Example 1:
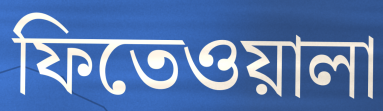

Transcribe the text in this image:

ফিতেওয়ালা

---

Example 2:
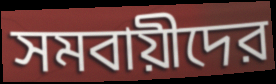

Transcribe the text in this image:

সমবায়ীদের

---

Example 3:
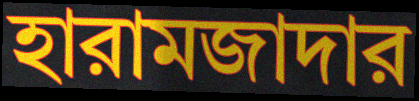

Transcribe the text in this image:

হারামজাদার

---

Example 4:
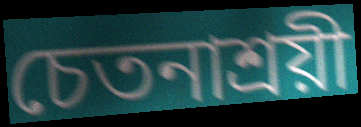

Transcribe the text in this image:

চেতনাশ্রয়ী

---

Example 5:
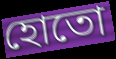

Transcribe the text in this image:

হোতো